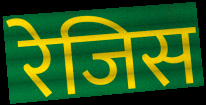
रेजिस